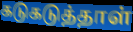
கடுகடுத்தாள்